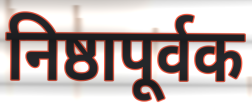
निष्ठापूर्वक